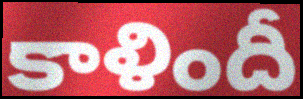
కాళిందీ